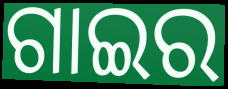
ଗାଇର